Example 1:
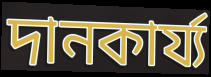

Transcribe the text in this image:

দানকার্য্য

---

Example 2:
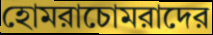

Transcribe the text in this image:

হোমরাচোমরাদের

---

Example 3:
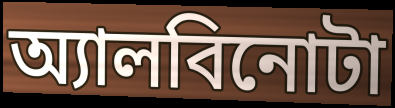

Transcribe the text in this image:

অ্যালবিনোটা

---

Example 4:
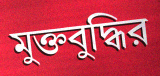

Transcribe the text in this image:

মুক্তবুদ্ধির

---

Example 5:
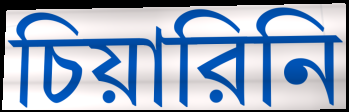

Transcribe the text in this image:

চিয়ারিনি